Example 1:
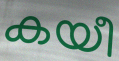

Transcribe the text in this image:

കയീ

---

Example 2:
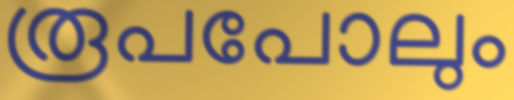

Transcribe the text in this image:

രൂപപോലും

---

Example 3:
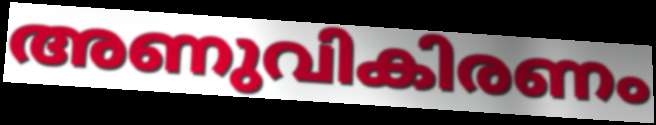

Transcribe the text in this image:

അണുവികിരണം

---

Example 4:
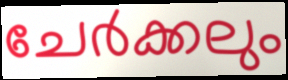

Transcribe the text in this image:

ചേർക്കലും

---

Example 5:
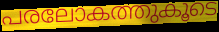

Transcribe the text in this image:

പരലോകത്തുകൂടെ